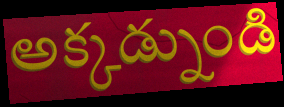
అక్కడ్నుండి